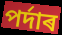
পৰ্দাৰ